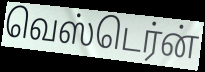
வெஸ்டெர்ன்